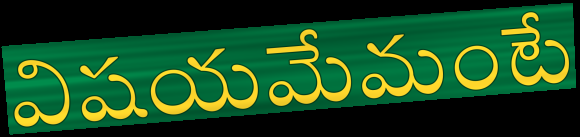
విషయమేమంటే